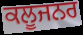
ਕਲੂਜਨਰ